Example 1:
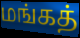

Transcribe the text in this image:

மங்கத்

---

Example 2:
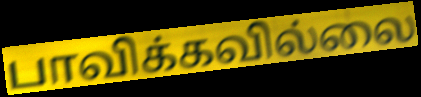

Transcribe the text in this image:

பாவிக்கவில்லை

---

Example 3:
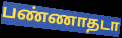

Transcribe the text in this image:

பண்ணாதடா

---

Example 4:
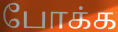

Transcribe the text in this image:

போக்க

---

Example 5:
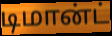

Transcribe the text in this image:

டிமான்ட்